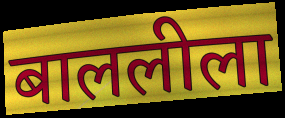
बाललीला